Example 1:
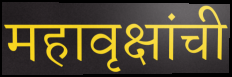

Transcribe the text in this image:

महावृक्षांची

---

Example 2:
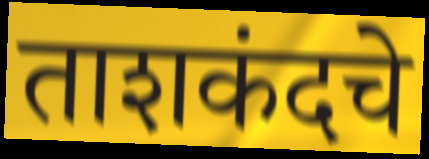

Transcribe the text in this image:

ताशकंदचे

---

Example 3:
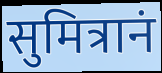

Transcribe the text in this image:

सुमित्रानं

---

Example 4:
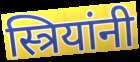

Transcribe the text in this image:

स्त्रियांनी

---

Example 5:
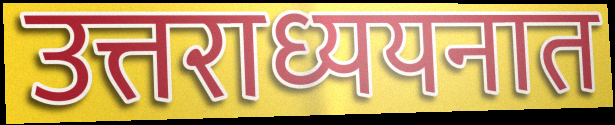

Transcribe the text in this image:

उत्तराध्ययनात